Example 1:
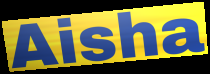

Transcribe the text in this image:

Aisha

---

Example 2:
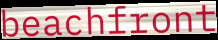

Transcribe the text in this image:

beachfront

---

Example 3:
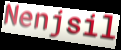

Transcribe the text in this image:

Nenjsil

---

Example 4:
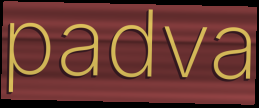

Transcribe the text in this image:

padva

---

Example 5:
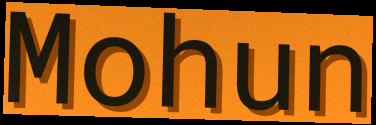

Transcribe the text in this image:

Mohun